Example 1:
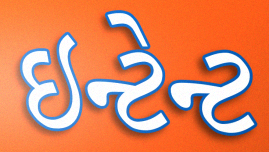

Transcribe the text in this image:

ઇન્ટેન્ટ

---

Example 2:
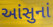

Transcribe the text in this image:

આંસુનાં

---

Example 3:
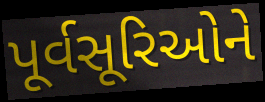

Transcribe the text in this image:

પૂર્વસૂરિઓને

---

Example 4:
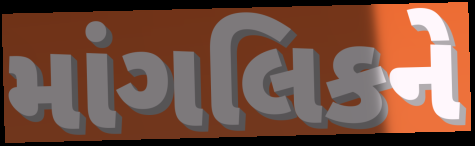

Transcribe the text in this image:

માંગલિકને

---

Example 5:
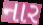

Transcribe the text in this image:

નાર